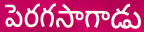
పెరగసాగాడు